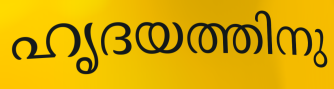
ഹൃദയത്തിനു